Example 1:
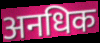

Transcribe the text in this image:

अनधिक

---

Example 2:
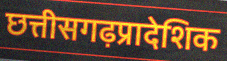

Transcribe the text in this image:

छत्तीसगढ़प्रादेशिक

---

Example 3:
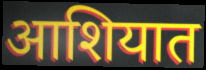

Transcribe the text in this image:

आशियात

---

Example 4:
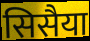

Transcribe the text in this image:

सिसैया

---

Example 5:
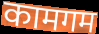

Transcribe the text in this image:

कामगम